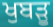
ਖੁਬੜੂ